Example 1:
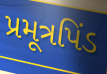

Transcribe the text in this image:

પ્રમૂત્રપિંડ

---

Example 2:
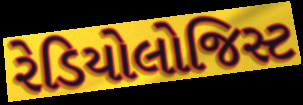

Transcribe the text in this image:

રેડિયોલોજિસ્ટ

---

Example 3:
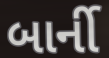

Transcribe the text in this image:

બાર્ની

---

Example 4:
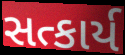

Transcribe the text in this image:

સત્કાર્ય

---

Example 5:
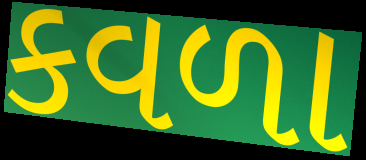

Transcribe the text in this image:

કવળા